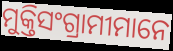
ମୁକ୍ତିସଂଗ୍ରାମୀମାନେ